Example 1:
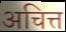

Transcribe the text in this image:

अचित्त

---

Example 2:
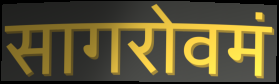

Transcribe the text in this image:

सागरोवमं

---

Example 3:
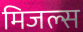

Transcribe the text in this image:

मिजल्स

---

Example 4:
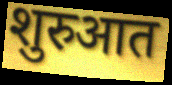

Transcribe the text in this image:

शुरुआत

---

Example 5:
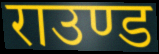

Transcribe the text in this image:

राउण्ड